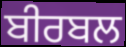
ਬੀਰਬਲ